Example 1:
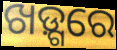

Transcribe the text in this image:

ଖଡ଼୍ଗରେ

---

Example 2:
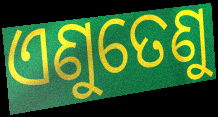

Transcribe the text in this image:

ଏଣୁତେଣୁ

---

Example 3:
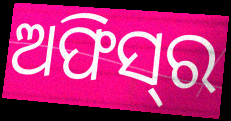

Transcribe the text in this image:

ଅଫିସ୍‌ର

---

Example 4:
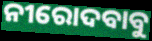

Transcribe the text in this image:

ନୀରୋଦବାବୁ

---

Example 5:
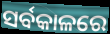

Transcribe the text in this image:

ସର୍ବକାଳରେ